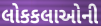
લોકકલાઓની